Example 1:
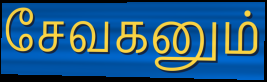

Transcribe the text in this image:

சேவகனும்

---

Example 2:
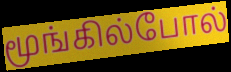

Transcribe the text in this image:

மூங்கில்போல்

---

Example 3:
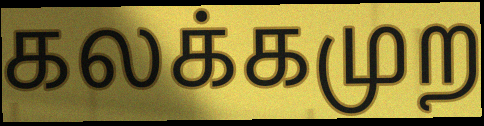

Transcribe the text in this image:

கலக்கமுற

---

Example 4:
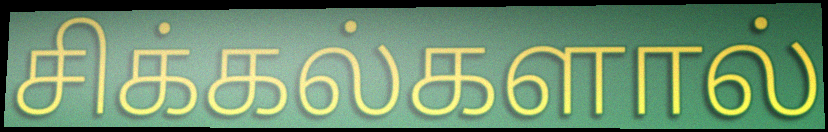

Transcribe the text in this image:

சிக்கல்களால்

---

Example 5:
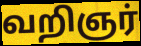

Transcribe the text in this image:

வறிஞர்